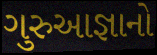
ગુરુઆજ્ઞાનો